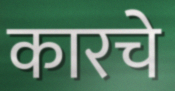
कारचे